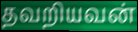
தவறியவன்